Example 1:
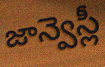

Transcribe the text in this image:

జాన్వెస్లీ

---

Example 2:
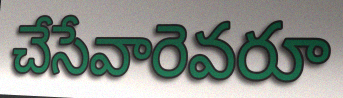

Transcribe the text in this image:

చేసేవారెవరూ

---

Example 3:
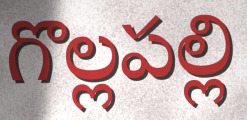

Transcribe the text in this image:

గొల్లపల్లి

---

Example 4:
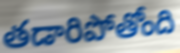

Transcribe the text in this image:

తడారిపోతోంది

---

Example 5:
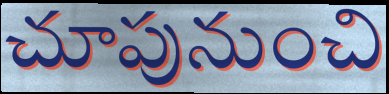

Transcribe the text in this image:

చూపునుంచి